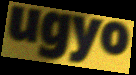
ugyo